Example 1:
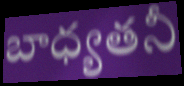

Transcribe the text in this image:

బాధ్యతనీ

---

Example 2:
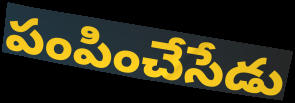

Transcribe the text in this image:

పంపించేసేడు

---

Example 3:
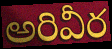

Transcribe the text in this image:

అరివీర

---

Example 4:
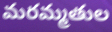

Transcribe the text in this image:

మరమ్మతుల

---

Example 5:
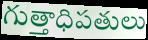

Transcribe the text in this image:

గుత్తాధిపతులు